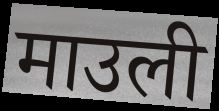
माउली